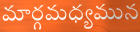
మార్గమధ్యమున